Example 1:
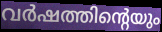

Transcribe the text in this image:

വർഷത്തിന്റെയും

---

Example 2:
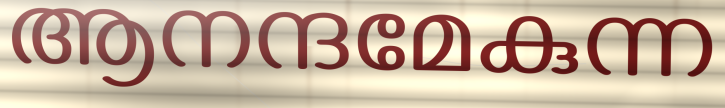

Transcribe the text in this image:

ആനന്ദമേകുന്ന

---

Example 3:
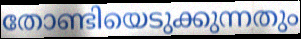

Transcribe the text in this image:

തോണ്ടിയെടുക്കുന്നതും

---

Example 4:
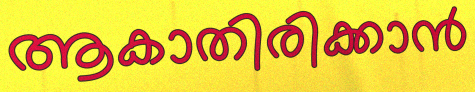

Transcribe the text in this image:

ആകാതിരിക്കാൻ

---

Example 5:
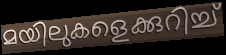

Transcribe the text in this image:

മയിലുകളെക്കുറിച്ച്